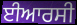
ਈਆਰਸੀ